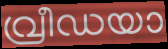
വ്രീഡയാ